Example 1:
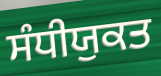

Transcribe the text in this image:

ਸੰਧੀਯੁਕਤ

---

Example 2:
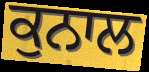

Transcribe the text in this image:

ਕੁਨਾਲ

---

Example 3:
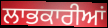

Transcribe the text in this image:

ਲਾਭਕਾਰੀਆਂ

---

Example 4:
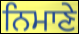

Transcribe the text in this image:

ਨਿਮਾਣੇ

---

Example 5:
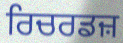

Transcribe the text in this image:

ਰਿਚਰਡਜ਼